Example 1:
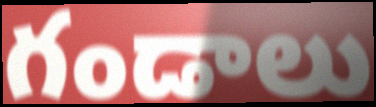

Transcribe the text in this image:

గండాలు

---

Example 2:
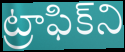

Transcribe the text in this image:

ట్రాఫిక్‌ని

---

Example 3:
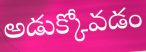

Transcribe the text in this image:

అడుక్కోవడం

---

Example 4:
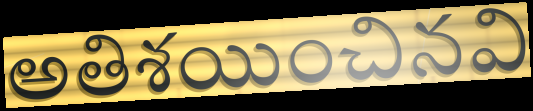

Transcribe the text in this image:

అతిశయించినవి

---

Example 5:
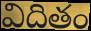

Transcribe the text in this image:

విదితం